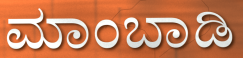
ಮಾಂಬಾಡಿ